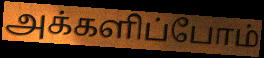
அக்களிப்போம்